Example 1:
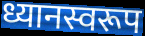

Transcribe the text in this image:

ध्यानस्वरूप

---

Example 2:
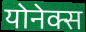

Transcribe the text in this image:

योनेक्स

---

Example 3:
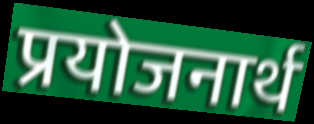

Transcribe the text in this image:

प्रयोजनार्थ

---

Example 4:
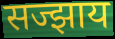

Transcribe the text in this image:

सज्झाय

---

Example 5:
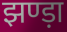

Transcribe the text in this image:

झण्ड़ा